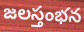
జలస్తంభన